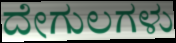
ದೇಗುಲಗಳು